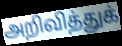
அறிவித்துக்